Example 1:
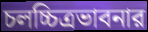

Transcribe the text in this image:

চলচ্চিত্রভাবনার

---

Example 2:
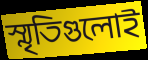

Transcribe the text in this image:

স্মৃতিগুলোই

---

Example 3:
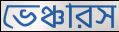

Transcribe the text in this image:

ভেঞ্চারস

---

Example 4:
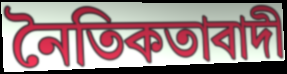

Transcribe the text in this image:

নৈতিকতাবাদী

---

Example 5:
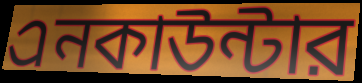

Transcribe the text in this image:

এনকাউন্টার